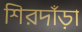
শিরদাঁড়া